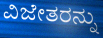
ವಿಜೇತರನ್ನು